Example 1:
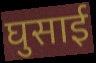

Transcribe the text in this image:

घुसाई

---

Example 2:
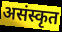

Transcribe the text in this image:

असंस्कृत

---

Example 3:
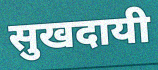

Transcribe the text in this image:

सुखदायी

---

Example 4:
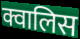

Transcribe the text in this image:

क्वालिस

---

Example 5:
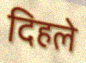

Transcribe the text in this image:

दिहले